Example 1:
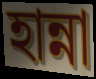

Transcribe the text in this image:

হান্না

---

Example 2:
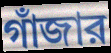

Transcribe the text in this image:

গাঁজার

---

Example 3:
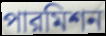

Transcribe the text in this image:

পারমিশন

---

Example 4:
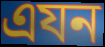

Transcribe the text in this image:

এযন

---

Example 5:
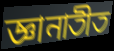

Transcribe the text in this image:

জ্ঞানাতীত